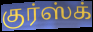
குர்ஸ்க்